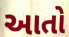
આતો